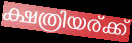
ക്ഷത്രിയര്ക്ക്